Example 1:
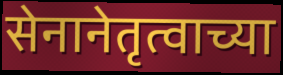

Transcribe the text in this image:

सेनानेतृत्वाच्या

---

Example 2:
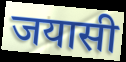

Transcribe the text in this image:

जयासी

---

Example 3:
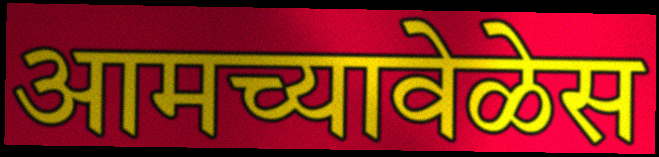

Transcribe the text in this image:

आमच्यावेळेस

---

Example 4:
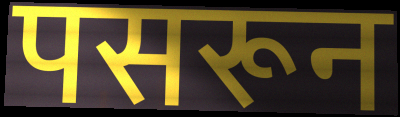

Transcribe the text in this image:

पसरून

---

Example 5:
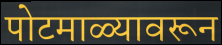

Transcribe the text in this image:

पोटमाळ्यावरून